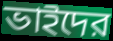
ভাইদের